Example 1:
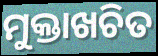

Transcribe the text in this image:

ମୁକ୍ତାଖଚିତ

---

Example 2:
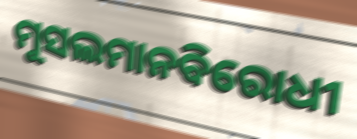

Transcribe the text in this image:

ମୁସଲମାନବିରୋଧୀ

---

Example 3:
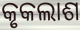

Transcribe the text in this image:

କୃକଲାଶ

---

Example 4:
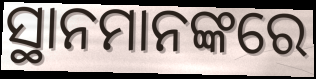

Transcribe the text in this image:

ସ୍ଥାନମାନଙ୍କରେ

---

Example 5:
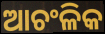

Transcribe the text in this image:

ଆଚଂଳିକ